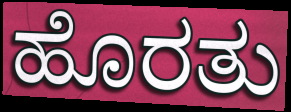
ಹೊರತು